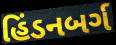
હિંડનબર્ગ